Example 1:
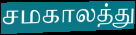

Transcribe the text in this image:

சமகாலத்து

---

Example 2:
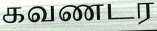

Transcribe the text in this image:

கவணடர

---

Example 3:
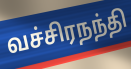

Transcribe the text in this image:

வச்சிரநந்தி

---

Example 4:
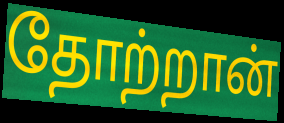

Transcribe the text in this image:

தோற்றான்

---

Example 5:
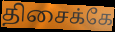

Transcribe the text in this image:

திசைக்கே